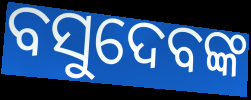
ବସୁଦେବଙ୍କ